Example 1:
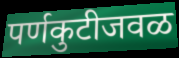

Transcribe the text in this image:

पर्णकुटीजवळ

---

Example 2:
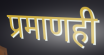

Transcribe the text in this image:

प्रमाणही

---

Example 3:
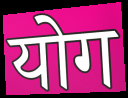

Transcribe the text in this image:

योग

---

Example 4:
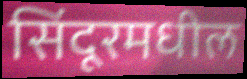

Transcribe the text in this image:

सिंदूरमधील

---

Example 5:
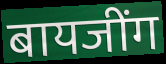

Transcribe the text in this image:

बायजींग